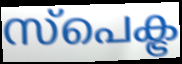
സ്‌പെക്ട്ര